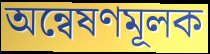
অন্বেষণমূলক